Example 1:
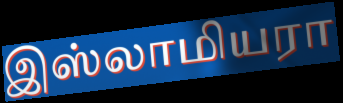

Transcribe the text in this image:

இஸ்லாமியரா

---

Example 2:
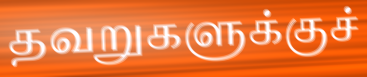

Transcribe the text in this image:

தவறுகளுக்குச்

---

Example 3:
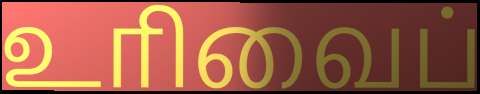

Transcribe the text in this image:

உரிவைப்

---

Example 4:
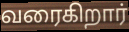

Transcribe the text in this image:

வரைகிறார்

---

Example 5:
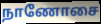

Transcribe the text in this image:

நாணோசை